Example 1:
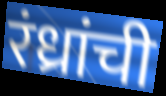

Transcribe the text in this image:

रंध्रांची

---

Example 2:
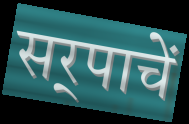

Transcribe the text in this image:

सर्पाचें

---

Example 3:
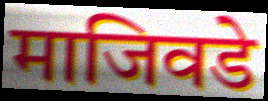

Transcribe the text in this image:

माजिवडे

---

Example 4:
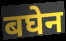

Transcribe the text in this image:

बघेन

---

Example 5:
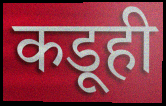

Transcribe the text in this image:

कडूही